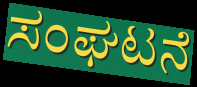
ಸಂಘಟನೆ